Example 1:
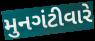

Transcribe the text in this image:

મુનગંટીવારે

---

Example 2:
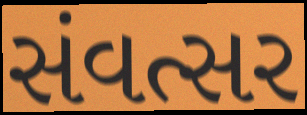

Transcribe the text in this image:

સંવત્સર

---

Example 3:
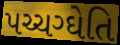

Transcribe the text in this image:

પચ્ચગ્ઘેતિ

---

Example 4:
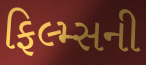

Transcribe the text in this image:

ફિલ્મ્સની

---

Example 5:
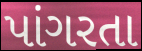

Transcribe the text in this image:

પાંગરતા